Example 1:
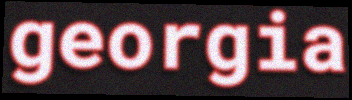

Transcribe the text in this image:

georgia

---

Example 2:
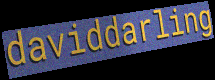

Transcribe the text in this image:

daviddarling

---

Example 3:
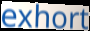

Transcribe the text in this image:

exhort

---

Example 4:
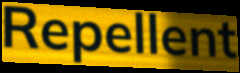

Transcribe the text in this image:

Repellent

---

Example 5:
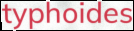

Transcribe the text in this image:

typhoides